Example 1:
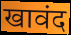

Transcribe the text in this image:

खावंद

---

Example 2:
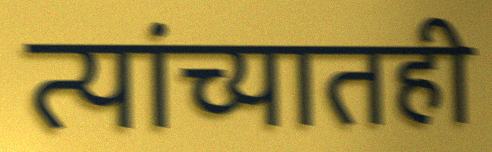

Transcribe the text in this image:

त्यांच्यातही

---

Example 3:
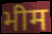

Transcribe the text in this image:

भीम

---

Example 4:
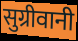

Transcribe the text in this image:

सुग्रीवानी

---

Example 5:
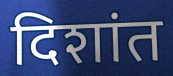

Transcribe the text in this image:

दिशांत